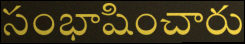
సంభాషించారు